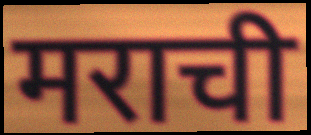
मराची